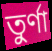
তুর্ণা